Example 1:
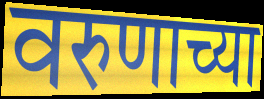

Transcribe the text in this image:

वरुणाच्या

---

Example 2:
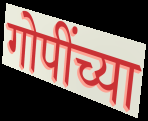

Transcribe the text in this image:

गोपींच्या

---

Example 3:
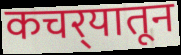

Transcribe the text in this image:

कचर्‍यातून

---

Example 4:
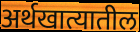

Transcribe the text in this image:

अर्थखात्यातील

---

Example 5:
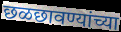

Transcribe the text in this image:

छळछावण्यांच्या